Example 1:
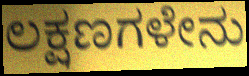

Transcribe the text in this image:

ಲಕ್ಷಣಗಳೇನು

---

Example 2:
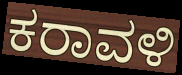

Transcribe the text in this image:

ಕರಾವಳಿ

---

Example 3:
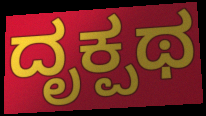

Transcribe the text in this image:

ದೃಕ್ಪಥ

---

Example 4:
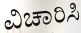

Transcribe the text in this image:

ವಿಚಾರಿಸಿ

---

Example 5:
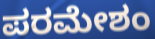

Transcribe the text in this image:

ಪರಮೇಶಂ